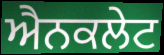
ਐਨਕਲੇਟ